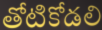
తోటికోడలి